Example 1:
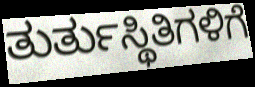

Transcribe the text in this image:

ತುರ್ತುಸ್ಥಿತಿಗಳಿಗೆ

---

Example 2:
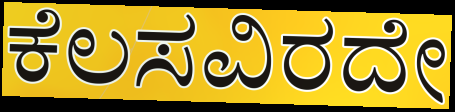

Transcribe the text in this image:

ಕೆಲಸವಿರದೇ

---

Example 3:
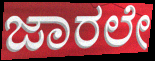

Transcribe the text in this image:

ಜಾರಲೇ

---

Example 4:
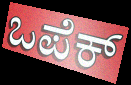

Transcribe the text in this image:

ಒಪೆಕ್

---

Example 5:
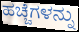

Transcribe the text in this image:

ಹಚ್ಚೆಗಳನ್ನು